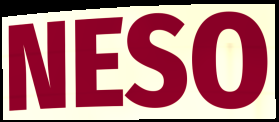
NESO